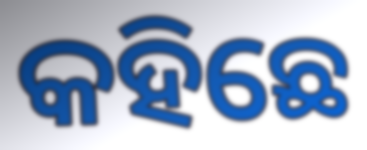
କହିଛେ